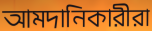
আমদানিকারীরা